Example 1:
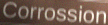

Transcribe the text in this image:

Corrossion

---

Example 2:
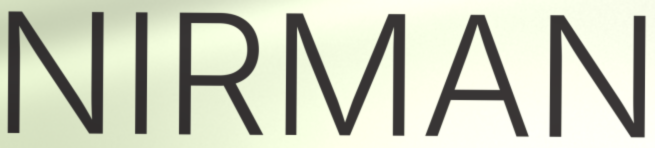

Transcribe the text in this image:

NIRMAN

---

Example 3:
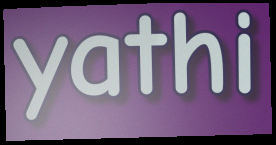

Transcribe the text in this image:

yathi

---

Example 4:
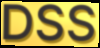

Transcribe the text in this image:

DSS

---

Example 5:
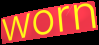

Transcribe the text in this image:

worn